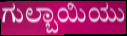
ಗುಲ್ಬಾಯಿಯು